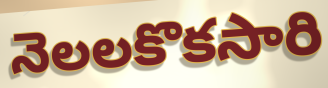
నెలలకొకసారి